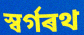
স্বৰ্গৰথ